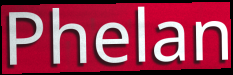
Phelan